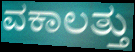
ವಕಾಲತ್ತು